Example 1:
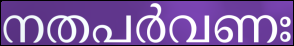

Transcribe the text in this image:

നതപർവണഃ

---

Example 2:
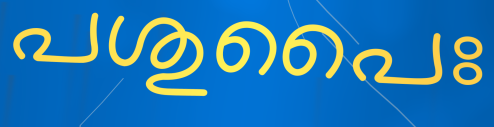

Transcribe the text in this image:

പശുപൈഃ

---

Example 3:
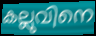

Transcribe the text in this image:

കല്ലുവിനെ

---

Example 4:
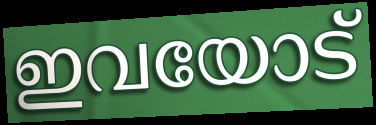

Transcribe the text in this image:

ഇവയോട്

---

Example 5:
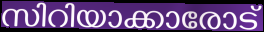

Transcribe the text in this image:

സിറിയാക്കാരോട്